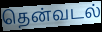
தென்வடல்